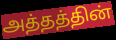
அத்தத்தின்